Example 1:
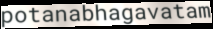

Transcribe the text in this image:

potanabhagavatam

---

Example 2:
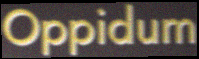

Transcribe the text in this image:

Oppidum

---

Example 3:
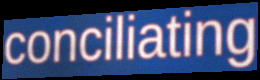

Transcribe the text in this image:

conciliating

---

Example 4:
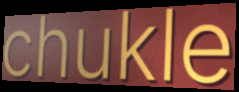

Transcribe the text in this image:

chukle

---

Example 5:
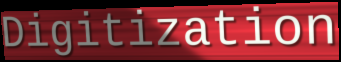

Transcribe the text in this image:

Digitization